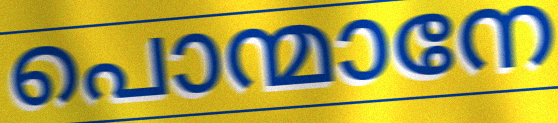
പൊന്മാനേ